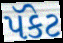
પૅકેટ